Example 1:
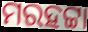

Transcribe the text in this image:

ମରହଟ୍ଟା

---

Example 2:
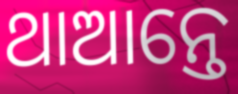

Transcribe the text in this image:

ଥାଆନ୍ତେ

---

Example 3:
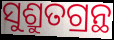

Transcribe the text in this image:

ସୁଶ୍ରୁତଗ୍ରନ୍ଥ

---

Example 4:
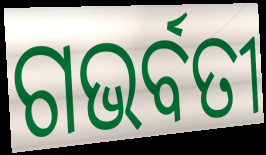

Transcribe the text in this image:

ଗଭର୍ବତୀ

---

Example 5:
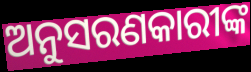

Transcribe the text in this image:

ଅନୁସରଣକାରୀଙ୍କ